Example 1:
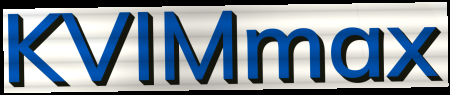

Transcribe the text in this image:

KVIMmax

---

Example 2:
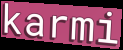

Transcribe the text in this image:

karmi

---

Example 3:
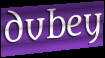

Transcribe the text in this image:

dubey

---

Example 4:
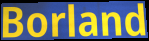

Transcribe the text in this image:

Borland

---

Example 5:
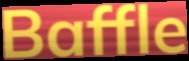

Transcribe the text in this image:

Baffle